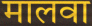
मालवा